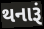
થનારૂં